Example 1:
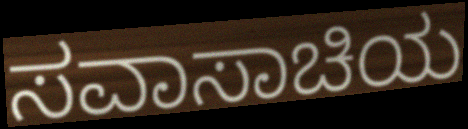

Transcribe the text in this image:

ಸವಾಸಾಚಿಯ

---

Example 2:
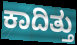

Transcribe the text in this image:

ಕಾದಿತ್ತು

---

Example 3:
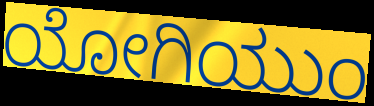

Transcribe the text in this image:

ಯೋಗಿಯುಂ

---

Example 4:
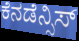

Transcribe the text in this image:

ಕೆನಡೆನ್ಸಿಸ್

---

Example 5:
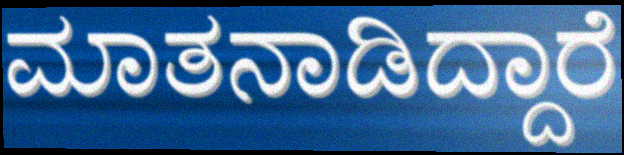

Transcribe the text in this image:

ಮಾತನಾಡಿದ್ದಾರೆ